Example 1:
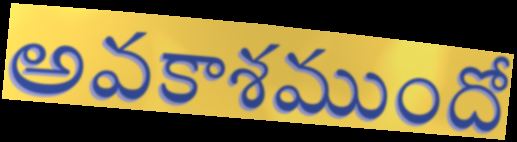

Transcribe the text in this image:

అవకాశముందో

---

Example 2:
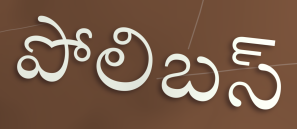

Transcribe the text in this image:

పోలిబస్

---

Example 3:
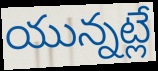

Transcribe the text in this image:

యున్నట్లే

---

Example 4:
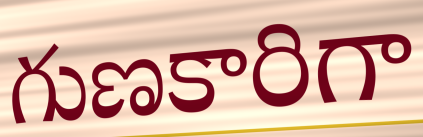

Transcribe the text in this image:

గుణకారిగా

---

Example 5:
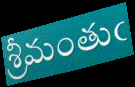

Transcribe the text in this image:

శ్రీమంతుఁ